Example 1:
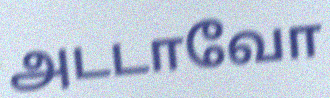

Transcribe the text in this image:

அடடாவோ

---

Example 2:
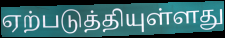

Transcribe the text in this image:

ஏற்படுத்தியுள்ளது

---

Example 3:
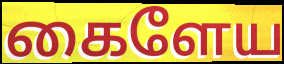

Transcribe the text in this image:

கைளேய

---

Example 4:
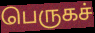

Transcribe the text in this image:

பெருகச்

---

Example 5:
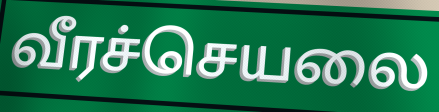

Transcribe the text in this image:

வீரச்செயலை